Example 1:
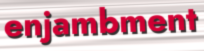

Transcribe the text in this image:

enjambment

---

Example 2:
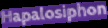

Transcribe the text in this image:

Hapalosiphon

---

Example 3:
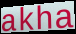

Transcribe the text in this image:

akha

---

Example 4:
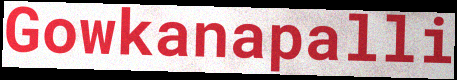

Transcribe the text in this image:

Gowkanapalli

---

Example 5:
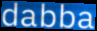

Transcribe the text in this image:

dabba